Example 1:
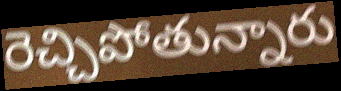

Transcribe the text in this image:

రెచ్చిపోతున్నారు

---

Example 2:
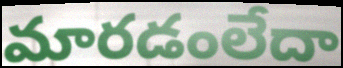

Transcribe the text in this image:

మారడంలేదా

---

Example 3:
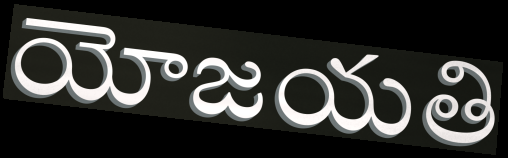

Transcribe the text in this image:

యోజయతి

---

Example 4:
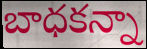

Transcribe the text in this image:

బాధకన్నా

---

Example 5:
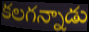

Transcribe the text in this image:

కలగన్నాడు